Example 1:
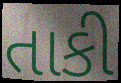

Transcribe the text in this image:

તાકી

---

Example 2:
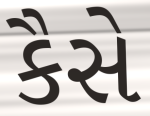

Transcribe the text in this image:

કૈસે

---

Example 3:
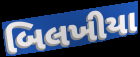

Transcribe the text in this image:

બિલખીયા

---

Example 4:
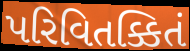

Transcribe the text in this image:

પરિવિતક્કિતં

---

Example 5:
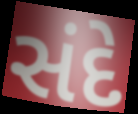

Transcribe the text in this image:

સંદે